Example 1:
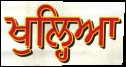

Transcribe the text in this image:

ਖੁਲ੍ਹਿਆ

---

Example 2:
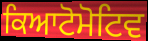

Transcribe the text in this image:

ਕਿਆਟੋਮੋਟਿਵ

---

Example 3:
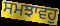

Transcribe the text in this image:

ਸਮਝਾਵਹੁ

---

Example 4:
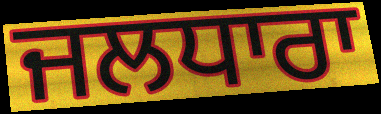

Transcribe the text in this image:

ਜਲਧਾਰਾ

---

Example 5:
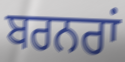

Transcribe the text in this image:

ਬਰਨਰਾਂ